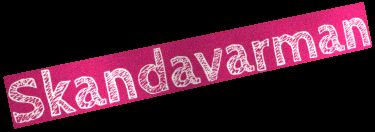
Skandavarman